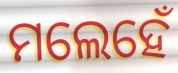
ମଲେହେଁ